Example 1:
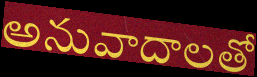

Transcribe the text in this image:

అనువాదాలతో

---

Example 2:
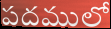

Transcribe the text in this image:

పదములో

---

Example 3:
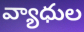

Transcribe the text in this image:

వ్యాధుల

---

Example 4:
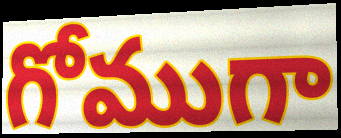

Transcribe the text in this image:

గోముగా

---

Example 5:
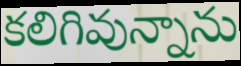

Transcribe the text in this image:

కలిగివున్నాను